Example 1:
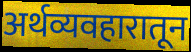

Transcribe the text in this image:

अर्थव्यवहारातून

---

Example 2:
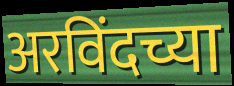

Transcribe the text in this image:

अरविंदच्या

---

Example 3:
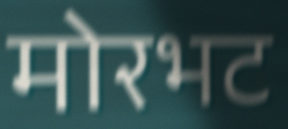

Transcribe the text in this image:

मोरभट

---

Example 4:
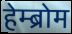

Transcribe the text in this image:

हेम्ब्रोम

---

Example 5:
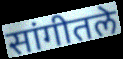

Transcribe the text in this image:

सांगीतले